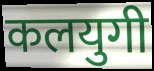
कलयुगी